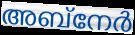
അബ്നേർ